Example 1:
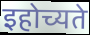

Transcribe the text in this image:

इहोच्यते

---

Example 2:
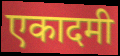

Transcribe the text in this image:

एकादमी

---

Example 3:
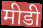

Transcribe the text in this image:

मीडी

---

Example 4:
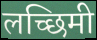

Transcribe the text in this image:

लच्छिमी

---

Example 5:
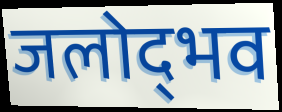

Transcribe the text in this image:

जलोद्भव